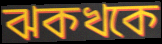
ঝকখকে